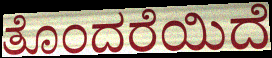
ತೊಂದರೆಯಿದೆ